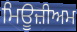
ਮਿਊਜ਼ੀਅਮ